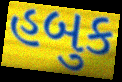
હબુક